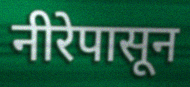
नीरेपासून